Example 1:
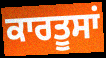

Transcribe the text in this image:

ਕਾਰਤੂਸਾਂ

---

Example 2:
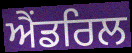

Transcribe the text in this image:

ਐਂਡਰਿਲ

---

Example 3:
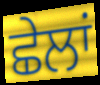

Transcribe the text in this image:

ਛੇਲਾਂ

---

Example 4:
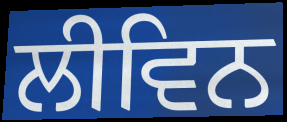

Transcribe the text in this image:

ਲੀਵਿਨ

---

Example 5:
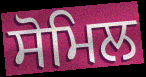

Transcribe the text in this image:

ਸੋਮਿਲ